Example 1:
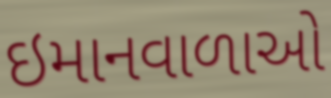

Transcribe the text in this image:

ઇમાનવાળાઓ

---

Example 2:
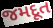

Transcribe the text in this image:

જમદૂત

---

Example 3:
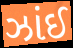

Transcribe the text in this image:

ઝાંઈ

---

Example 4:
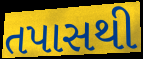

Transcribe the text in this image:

તપાસથી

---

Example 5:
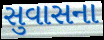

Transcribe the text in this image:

સુવાસના